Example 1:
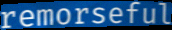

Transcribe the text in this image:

remorseful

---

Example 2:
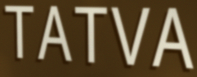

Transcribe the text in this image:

TATVA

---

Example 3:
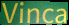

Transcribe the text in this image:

Vinca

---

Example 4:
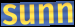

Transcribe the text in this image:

sunn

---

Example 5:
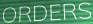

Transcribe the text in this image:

ORDERS